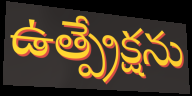
ఉత్ప్రేక్షను